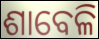
ଶାବେଳି